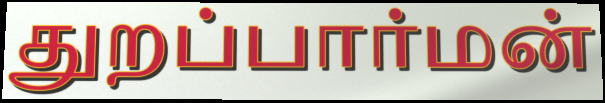
துறப்பார்மன்